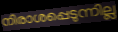
നിരാശപ്പെടുന്നില്ല